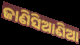
ଜାଣିସିଆଣିଆ